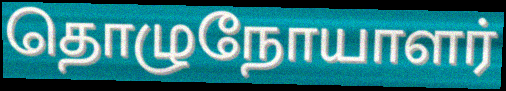
தொழுநோயாளர்